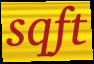
sqft